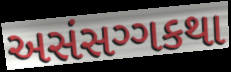
અસંસગ્ગકથા